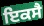
ਇਕਸੈ